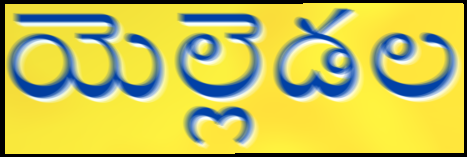
యెల్లెడల